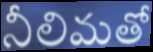
నీలిమతో